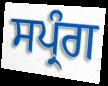
ਸਪ੍ਰੰਗ